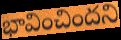
భావించిందని